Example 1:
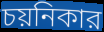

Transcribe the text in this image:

চয়নিকার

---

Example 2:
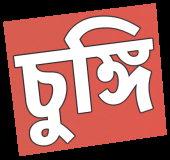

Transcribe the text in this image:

চুঙ্গি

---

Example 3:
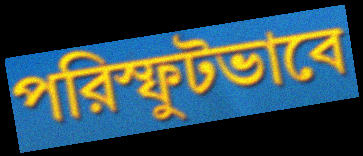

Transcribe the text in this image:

পরিস্ফুটভাবে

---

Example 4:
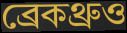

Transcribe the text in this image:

ব্রেকথ্রুও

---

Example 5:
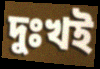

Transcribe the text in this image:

দুঃখই